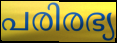
പരിരഭ്യ